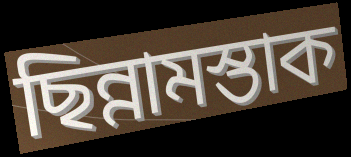
ছিন্নামস্তাক